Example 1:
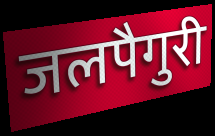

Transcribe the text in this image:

जलपैगुरी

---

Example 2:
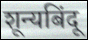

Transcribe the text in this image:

शून्यबिंदू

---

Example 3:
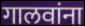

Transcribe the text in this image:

गालवांना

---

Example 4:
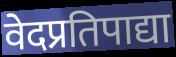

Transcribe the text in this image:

वेदप्रतिपाद्या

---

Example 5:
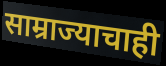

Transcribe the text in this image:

साम्राज्याचाही